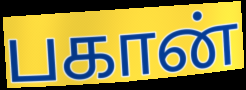
பகான்